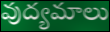
వుద్యమాలు